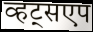
व्हट्सएप